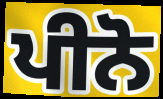
ਪੀਨੋ